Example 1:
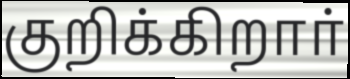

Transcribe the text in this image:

குறிக்கிறார்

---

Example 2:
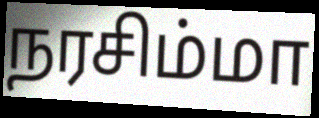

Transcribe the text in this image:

நரசிம்மா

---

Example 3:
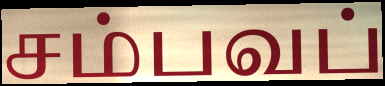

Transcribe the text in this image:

சம்பவப்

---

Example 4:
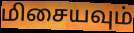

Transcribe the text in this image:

மிசையவும்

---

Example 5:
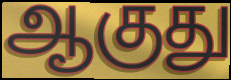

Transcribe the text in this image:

ஆகுது